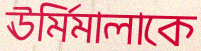
ঊর্মিমালাকে